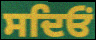
ਸਦਿਓਂ